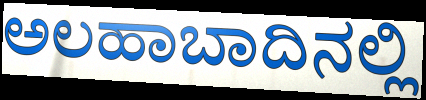
ಅಲಹಾಬಾದಿನಲ್ಲಿ